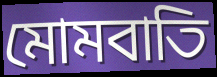
মোমবাতি